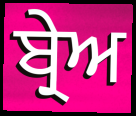
ਬ੍ਰੇਅ